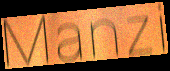
Manzi